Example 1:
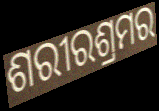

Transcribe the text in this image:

ଶରୀରଶ୍ରମର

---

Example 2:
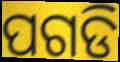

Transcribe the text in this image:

ପଗଡି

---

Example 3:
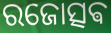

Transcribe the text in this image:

ରଜୋତ୍ସଵ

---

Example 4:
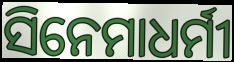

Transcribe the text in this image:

ସିନେମାଧର୍ମୀ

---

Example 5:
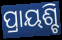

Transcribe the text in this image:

ପ୍ରାୟଶ୍ଚି